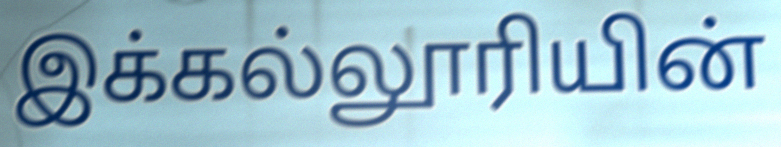
இக்கல்லூரியின்